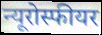
न्यूरोस्फीयर